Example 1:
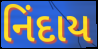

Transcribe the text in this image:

નિંદાય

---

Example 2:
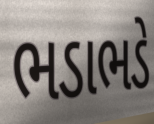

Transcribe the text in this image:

ભડાભડે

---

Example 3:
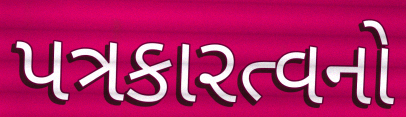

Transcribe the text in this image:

પત્રકારત્વનો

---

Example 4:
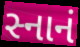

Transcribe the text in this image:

સ્નાનં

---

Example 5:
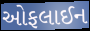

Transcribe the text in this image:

ઓફલાઈન